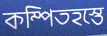
কম্পিতহস্তে